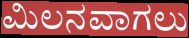
ಮಿಲನವಾಗಲು